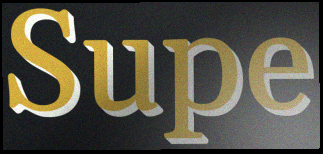
Supe